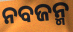
ନବଜନ୍ମ